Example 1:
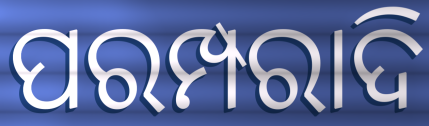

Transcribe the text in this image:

ପରମ୍ପରାଦି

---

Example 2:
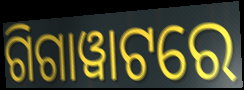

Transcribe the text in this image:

ଗିଗାୱାଟରେ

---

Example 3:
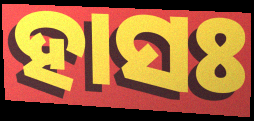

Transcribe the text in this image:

ହାସଃ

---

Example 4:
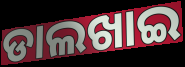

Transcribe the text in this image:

ଡାଲଖାଇ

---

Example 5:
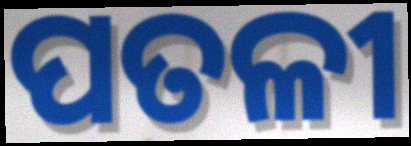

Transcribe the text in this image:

ପତଳୀ